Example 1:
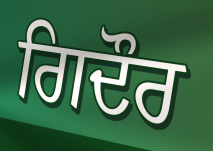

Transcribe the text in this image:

ਗਿਦੌਰ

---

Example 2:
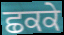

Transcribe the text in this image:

ਛਕਕੇ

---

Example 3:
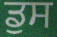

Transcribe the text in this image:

ਡੁਸ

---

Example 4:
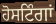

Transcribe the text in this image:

ਹੋਸਟਿੰਗਾਂ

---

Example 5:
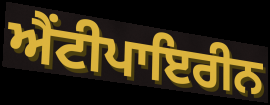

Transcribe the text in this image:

ਐਂਟੀਪਾਇਰੀਨ